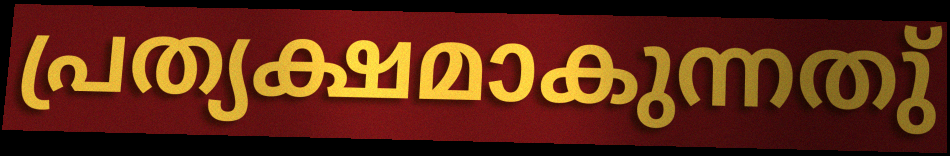
പ്രത്യക്ഷമാകുന്നതു്